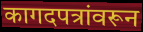
कागदपत्रांवरून